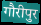
गौरीपुर